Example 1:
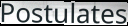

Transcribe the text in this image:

Postulates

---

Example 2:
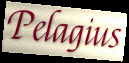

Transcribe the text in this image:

Pelagius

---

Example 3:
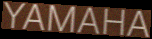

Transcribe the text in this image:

YAMAHA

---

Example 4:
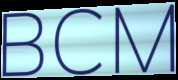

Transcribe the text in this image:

BCM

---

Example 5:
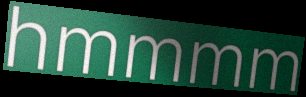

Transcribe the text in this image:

hmmmm